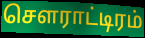
சௌராட்டிரம்